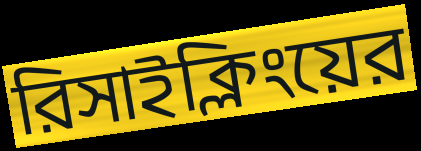
রিসাইক্লিংয়ের